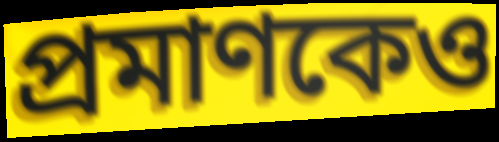
প্রমাণকেও